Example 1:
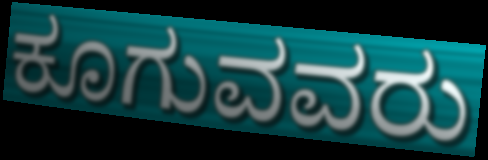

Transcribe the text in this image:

ಕೂಗುವವರು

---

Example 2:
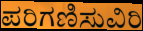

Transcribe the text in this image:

ಪರಿಗಣಿಸುವಿರಿ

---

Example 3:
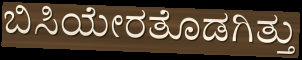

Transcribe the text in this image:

ಬಿಸಿಯೇರತೊಡಗಿತ್ತು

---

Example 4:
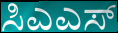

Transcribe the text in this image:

ಸಿಎಎಸ್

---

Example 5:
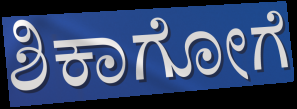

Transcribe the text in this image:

ಶಿಕಾಗೋಗೆ